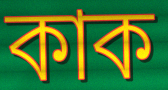
কাক